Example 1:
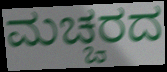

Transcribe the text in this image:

ಮಚ್ಚರದ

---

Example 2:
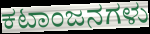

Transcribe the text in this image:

ಕಟಾಂಜನಗಳು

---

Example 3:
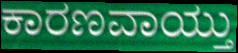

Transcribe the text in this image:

ಕಾರಣವಾಯ್ತು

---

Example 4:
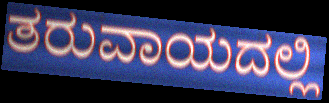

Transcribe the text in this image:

ತರುವಾಯದಲ್ಲಿ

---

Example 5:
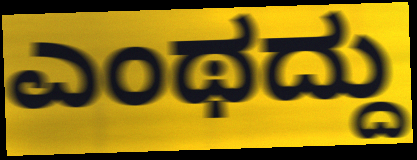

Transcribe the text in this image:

ಎಂಥದ್ದು